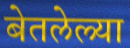
बेतलेल्या